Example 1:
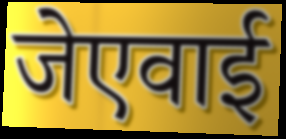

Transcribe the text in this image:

जेएवाई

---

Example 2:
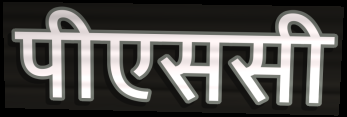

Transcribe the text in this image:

पीएससी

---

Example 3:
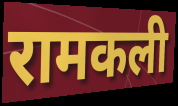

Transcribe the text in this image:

रामकली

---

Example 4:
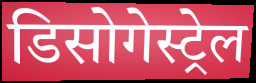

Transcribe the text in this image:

डिसोगेस्ट्रेल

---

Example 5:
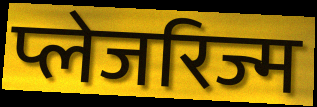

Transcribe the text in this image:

प्लेजरिज्म